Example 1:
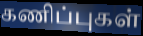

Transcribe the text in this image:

கணிப்புகள்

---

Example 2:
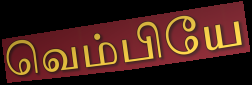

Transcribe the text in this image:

வெம்பியே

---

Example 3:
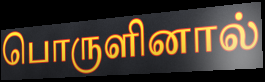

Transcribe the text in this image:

பொருளினால்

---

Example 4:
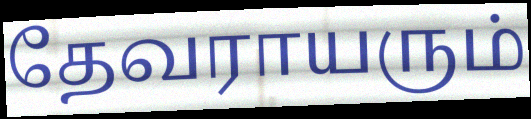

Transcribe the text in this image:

தேவராயரும்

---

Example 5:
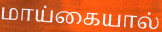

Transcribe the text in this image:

மாய்கையால்